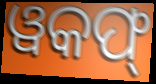
ୱକଫ୍